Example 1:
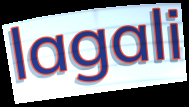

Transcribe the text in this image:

lagali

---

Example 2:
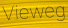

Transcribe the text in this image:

Vieweg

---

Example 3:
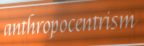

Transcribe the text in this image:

anthropocentrism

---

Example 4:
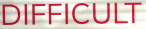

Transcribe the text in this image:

DIFFICULT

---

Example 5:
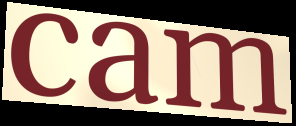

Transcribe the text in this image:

cam